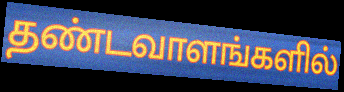
தண்டவாளங்களில்